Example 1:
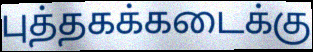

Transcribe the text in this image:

புத்தகக்கடைக்கு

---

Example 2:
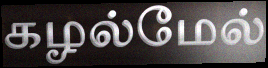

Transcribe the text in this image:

கழல்மேல்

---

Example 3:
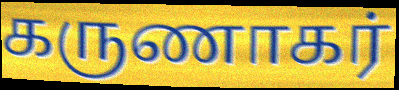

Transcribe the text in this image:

கருணாகர்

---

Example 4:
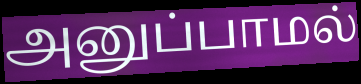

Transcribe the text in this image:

அனுப்பாமல்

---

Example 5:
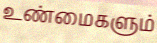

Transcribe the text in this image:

உண்மைகளும்